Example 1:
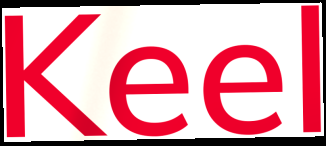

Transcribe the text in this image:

Keel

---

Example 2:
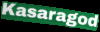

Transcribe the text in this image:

Kasaragod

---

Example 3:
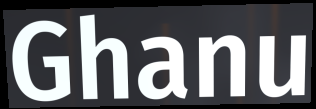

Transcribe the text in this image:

Ghanu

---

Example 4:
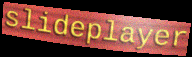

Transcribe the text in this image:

slideplayer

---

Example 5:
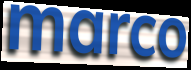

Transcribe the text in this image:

marco